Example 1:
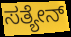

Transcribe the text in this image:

ಸತ್ಯೇನ್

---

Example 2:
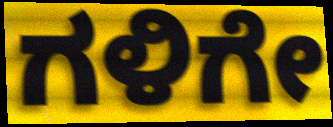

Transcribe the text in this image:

ಗಳಿಗೇ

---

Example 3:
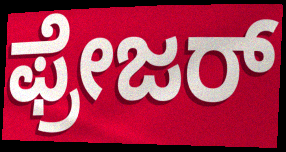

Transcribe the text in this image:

ಫ್ರೇಜರ್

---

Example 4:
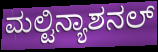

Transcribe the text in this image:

ಮಲ್ಟಿನ್ಯಾಶನಲ್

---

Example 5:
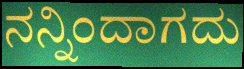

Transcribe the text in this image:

ನನ್ನಿಂದಾಗದು